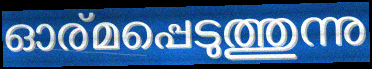
ഓര്മപ്പെടുത്തുന്നു